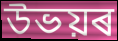
উভয়ৰ